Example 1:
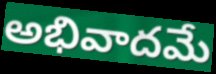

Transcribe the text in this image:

అభివాదమే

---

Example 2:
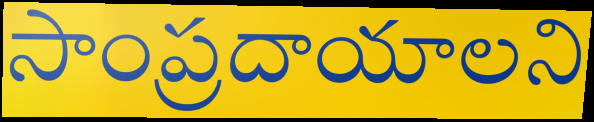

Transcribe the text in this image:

సాంప్రదాయాలని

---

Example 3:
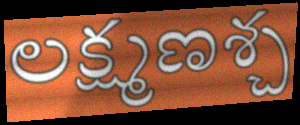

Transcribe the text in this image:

లక్ష్మణశ్చ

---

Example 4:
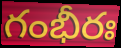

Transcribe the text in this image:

గంభీరః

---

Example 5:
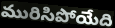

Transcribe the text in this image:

మురిసిపోయేది